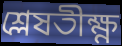
শ্লেষতীক্ষ্ণ